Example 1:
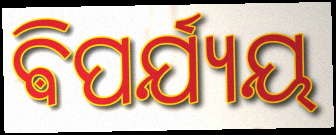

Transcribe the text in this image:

ଵିପର୍ଯ୍ୟୟ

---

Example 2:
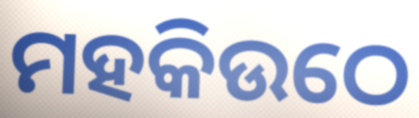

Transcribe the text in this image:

ମହକିଉଠେ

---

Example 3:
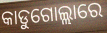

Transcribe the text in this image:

କାଡୁଗୋଲ୍ଲାରେ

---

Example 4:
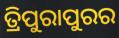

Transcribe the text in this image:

ତ୍ରିପୁରାପୁରର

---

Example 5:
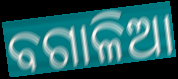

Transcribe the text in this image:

ବଗାଳିଆ